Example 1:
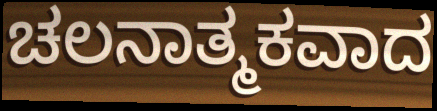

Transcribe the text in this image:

ಚಲನಾತ್ಮಕವಾದ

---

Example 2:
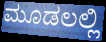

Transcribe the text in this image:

ಮೂಡಲಲ್ಲಿ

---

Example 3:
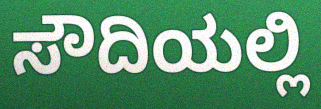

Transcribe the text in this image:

ಸೌದಿಯಲ್ಲಿ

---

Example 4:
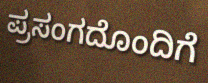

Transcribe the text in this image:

ಪ್ರಸಂಗದೊಂದಿಗೆ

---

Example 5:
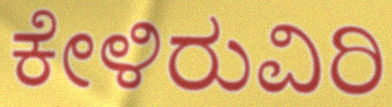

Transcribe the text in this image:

ಕೇಳಿರುವಿರಿ